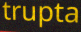
trupta